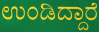
ಉಂಡಿದ್ದಾರೆ